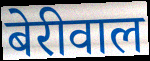
बेरीवाल